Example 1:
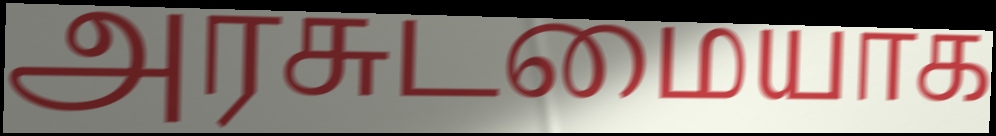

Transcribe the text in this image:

அரசுடமையாக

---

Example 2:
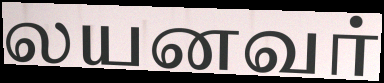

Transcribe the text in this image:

லயனவர்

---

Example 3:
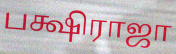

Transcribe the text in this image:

பக்ஷிராஜா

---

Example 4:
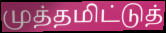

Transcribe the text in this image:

முத்தமிட்டுத்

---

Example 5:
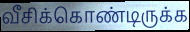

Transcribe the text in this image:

வீசிக்கொண்டிருக்க